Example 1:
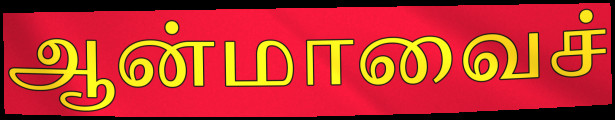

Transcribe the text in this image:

ஆன்மாவைச்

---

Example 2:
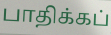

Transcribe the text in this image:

பாதிக்கப்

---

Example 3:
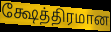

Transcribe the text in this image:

க்ஷேத்திரமான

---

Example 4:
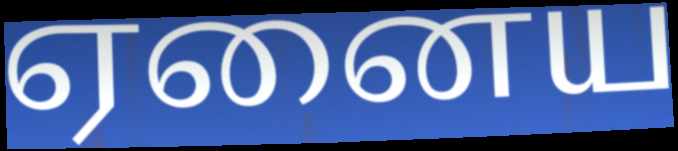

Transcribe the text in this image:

ஏனைய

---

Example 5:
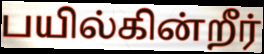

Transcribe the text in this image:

பயில்கின்றீர்